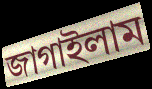
জাগাইলাম